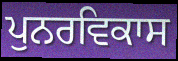
ਪੁਨਰਵਿਕਾਸ